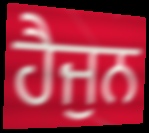
ਹੈਜੁਨ